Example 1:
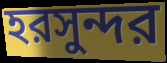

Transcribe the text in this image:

হরসুন্দর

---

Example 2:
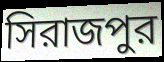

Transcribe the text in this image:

সিরাজপুর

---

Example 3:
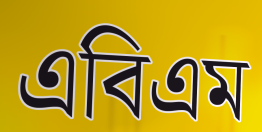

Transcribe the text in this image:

এবিএম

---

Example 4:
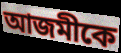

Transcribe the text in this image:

আজমীকে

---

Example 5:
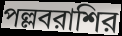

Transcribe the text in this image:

পল্লবরাশির